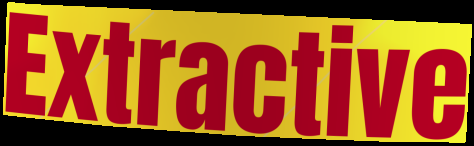
Extractive